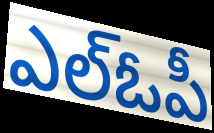
ఎల్ఓపీ